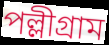
পল্লীগ্রাম